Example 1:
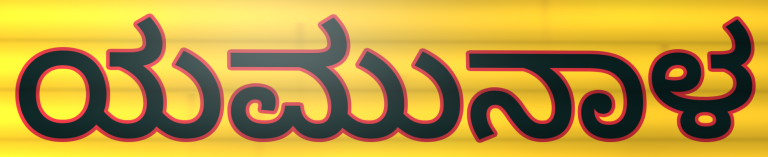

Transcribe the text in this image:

ಯಮುನಾಳ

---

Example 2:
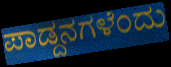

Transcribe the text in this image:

ಪಾಡ್ದನಗಳೆಂದು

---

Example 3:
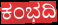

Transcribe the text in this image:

ಕಂಭದಿ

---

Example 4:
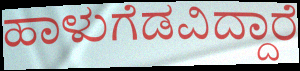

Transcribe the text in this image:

ಹಾಳುಗೆಡವಿದ್ದಾರೆ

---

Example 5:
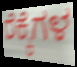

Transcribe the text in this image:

ರೆಕ್ಕೆಗಳ